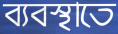
ব্যবস্থাতে